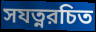
সযত্নরচিত